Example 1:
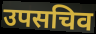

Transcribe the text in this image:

उपसचिव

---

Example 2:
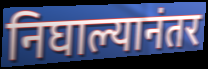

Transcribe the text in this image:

निघाल्यानंतर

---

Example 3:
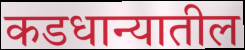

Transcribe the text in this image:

कडधान्यातील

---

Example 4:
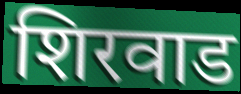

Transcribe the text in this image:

शिरवाड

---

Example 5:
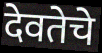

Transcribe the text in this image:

देवतेचे